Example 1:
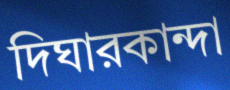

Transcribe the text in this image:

দিঘারকান্দা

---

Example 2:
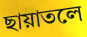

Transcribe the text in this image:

ছায়াতলে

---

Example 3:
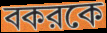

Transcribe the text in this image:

বকরকে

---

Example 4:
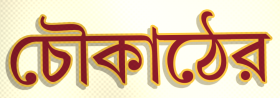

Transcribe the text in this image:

চৌকাঠের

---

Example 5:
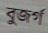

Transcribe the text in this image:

বুজর্গ